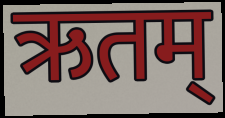
ऋतम्